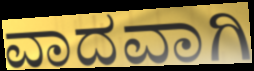
ವಾದವಾಗಿ